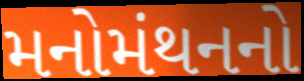
મનોમંથનનો